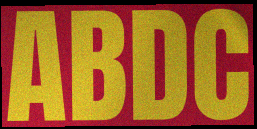
ABDC